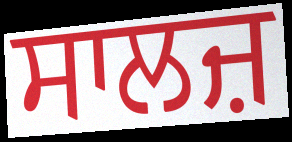
ਸਾਲਜ਼